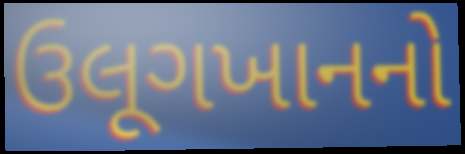
ઉલૂગખાનનો